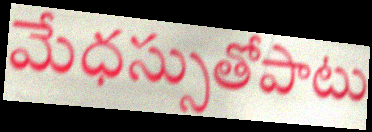
మేధస్సుతోపాటు